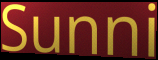
Sunni